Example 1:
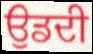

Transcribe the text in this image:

ਉਡਦੀ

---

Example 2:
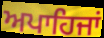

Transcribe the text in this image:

ਅਪਾਹਿਜਾਂ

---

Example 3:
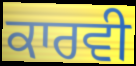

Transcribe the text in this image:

ਕਾਰਵੀ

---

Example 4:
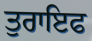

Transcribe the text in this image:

ਤੁਰਾਇਫ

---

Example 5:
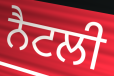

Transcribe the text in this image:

ਨੈਟਲੀ